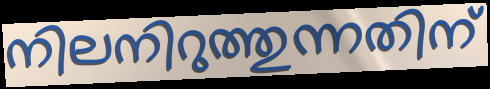
നിലനിറുത്തുന്നതിന്